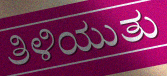
ತಿಳಿಯುತು